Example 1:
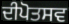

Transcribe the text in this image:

ਦੀਪੋਤਸਵ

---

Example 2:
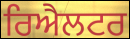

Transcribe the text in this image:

ਰਿਐਲਟਰ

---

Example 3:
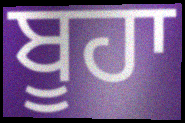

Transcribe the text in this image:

ਬੂਹਾ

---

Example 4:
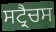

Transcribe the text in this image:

ਸਟ੍ਰੈਚਸ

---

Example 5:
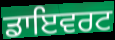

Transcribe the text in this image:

ਡਾਇਵਰਟ